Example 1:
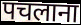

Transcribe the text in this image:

पचलाना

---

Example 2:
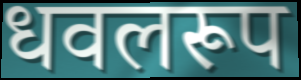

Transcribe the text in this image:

धवलरूप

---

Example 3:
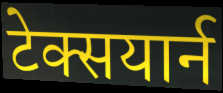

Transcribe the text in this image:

टेक्सयार्न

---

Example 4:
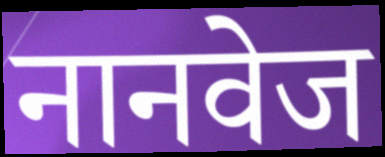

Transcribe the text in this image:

नानवेज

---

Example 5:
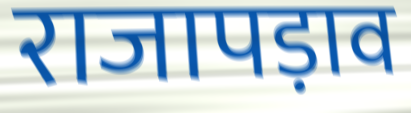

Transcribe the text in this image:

राजापड़ाव